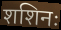
शशिनः